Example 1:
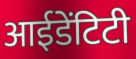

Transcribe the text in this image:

आईडेंटिटी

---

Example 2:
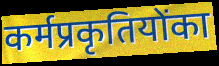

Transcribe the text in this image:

कर्मप्रकृतियोंका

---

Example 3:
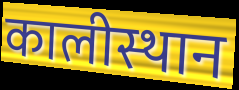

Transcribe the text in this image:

कालीस्थान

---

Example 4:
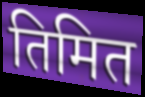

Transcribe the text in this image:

तिमित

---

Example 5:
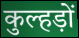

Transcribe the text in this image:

कुल्हड़ों